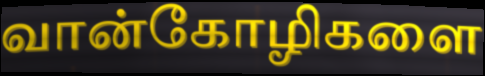
வான்கோழிகளை